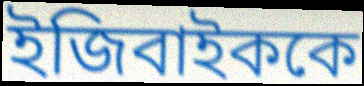
ইজিবাইককে